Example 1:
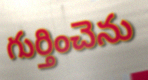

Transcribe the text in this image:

గుర్తించెను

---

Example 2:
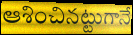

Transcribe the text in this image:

ఆశించినట్టుగానే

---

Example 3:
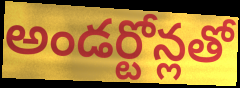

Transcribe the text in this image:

అండర్టోన్లతో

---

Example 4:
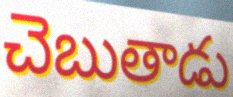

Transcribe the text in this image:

చెబుతాడు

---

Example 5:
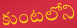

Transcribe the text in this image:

కుంటలోని